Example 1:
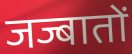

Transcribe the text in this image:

जज्बातों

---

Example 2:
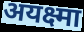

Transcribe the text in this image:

अयक्ष्मा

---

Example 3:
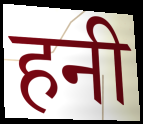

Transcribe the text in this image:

हनी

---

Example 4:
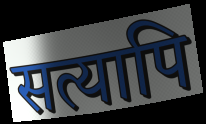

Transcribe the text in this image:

सत्यापि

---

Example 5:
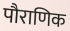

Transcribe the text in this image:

पौराणिक